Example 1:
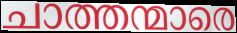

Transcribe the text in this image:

ചാത്തന്മാരെ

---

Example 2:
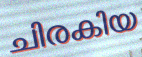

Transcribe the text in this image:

ചിരകിയ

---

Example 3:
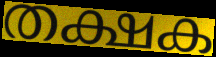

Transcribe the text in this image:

തക്ഷക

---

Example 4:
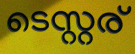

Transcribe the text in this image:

ടെസ്റ്റര്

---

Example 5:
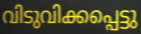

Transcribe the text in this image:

വിടുവിക്കപ്പെട്ടു